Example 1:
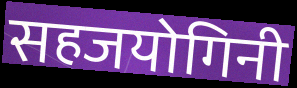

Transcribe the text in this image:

सहजयोगिनी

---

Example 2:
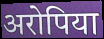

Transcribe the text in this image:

अरोपिया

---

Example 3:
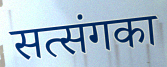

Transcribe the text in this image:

सत्संगका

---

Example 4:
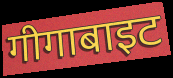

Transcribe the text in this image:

गीगाबाइट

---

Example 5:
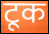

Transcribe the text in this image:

टूक